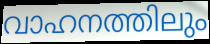
വാഹനത്തിലും